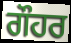
ਗੌਹਰ